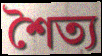
শৈত্য